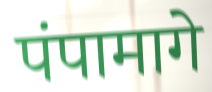
पंपामागे